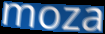
moza